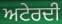
ਅਟੇਰਦੀ